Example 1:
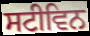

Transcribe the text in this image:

ਸਟੀਵਿਨ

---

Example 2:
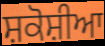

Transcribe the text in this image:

ਸ਼ਕੋਸ਼ੀਆ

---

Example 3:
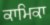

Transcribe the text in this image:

ਕਾਮਿਕਾ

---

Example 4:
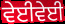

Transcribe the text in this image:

ਵੇਈਵੇਈ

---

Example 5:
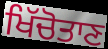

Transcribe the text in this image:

ਖਿੱਚੋਤਾਣ